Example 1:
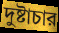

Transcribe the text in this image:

দুষ্টাচার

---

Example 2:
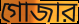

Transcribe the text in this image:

গোজার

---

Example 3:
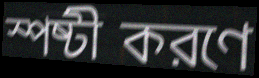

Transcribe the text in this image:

স্পষ্টীকরণে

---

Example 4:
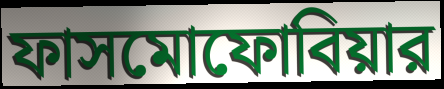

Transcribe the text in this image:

ফাসমোফোবিয়ার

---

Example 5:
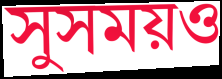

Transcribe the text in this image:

সুসময়ও